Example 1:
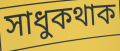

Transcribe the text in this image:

সাধুকথাক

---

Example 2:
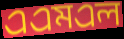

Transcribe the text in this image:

এএমএল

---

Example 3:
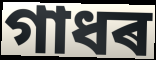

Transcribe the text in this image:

গাধৰ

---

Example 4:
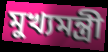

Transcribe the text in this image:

মুখ্যমন্ত্ৰী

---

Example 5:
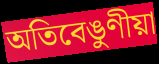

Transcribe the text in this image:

অতিবেঙুণীয়া